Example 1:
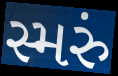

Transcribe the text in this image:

સ્મરું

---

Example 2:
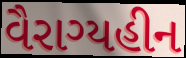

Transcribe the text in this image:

વૈરાગ્યહીન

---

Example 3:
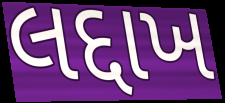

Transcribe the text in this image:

લદ્દાખ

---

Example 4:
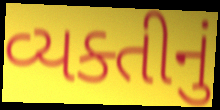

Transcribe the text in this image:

વ્યક્તીનું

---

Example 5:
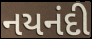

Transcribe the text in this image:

નયનંદી